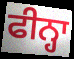
ਫੀਨ੍ਹਾ